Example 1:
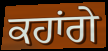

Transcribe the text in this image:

ਕਹਾਂਗੇ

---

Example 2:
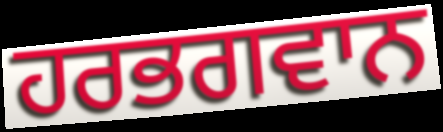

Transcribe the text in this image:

ਹਰਭਗਵਾਨ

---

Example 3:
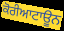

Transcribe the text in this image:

ਕੋਰੀਆਟਾਊਨ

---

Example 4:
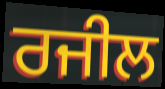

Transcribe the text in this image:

ਰਜੀਲ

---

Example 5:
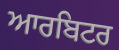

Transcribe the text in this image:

ਆਰਬਿਟਰ